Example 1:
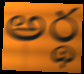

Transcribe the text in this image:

అర్థ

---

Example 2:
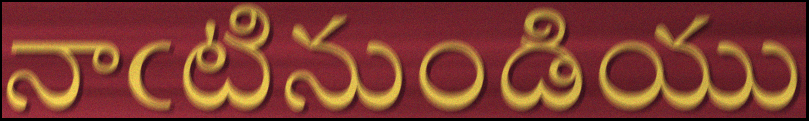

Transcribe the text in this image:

నాఁటినుండియు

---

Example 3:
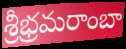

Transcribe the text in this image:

శ్రీభ్రమరాంబా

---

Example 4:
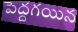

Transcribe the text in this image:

పెద్దగయిన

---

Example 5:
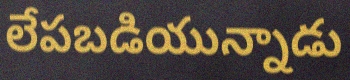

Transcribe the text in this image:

లేపబడియున్నాడు